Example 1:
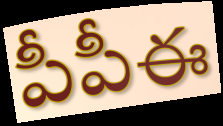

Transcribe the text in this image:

పీపీఈ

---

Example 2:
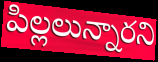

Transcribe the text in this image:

పిల్లలున్నారని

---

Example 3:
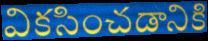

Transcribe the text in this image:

వికసించడానికి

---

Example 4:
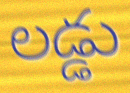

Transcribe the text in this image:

లడ్డు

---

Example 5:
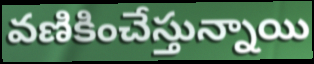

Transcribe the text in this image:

వణికించేస్తున్నాయి